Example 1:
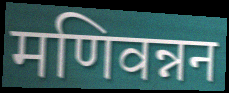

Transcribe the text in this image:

मणिवन्नन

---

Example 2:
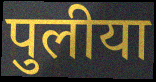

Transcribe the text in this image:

पुलीया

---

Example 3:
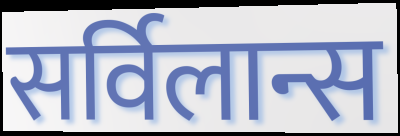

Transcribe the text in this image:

सर्विलान्स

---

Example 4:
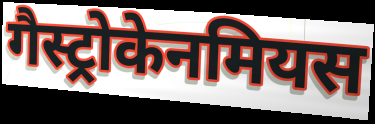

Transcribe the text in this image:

गैस्ट्रोकेनमियस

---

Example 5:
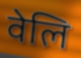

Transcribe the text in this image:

वेलि